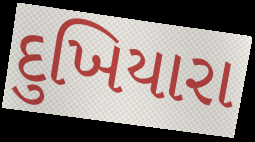
દુખિયારા